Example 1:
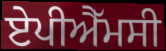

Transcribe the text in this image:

ਏਪੀਐੱਮਸੀ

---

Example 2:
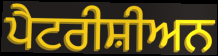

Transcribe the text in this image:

ਪੈਟਰੀਸ਼ੀਅਨ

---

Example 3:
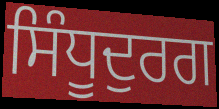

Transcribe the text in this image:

ਸਿੰਧੂਦੁਰਗ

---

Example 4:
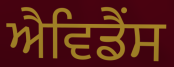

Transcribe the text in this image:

ਐਵਿਡੈਂਸ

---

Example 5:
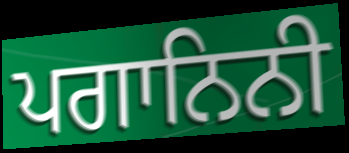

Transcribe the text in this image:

ਪਗਾਨਿਨੀ